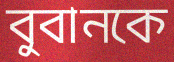
বুবানকে